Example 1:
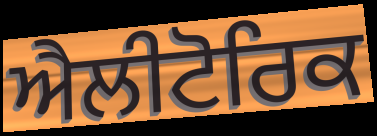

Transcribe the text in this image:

ਐਲੀਟੋਰਿਕ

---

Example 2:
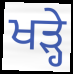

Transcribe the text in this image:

ਖਡ਼੍ਹੇ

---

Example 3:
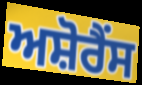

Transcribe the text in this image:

ਅਸ਼ੋਰੈਂਸ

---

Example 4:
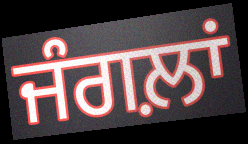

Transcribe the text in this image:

ਜੰਗਲ਼ਾਂ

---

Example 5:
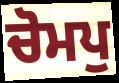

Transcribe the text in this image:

ਚੋਮਪੁ